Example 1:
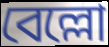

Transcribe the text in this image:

বেল্লো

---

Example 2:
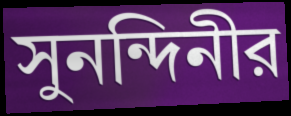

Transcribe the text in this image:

সুনন্দিনীর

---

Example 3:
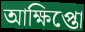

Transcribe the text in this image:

আক্ষিপ্তো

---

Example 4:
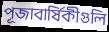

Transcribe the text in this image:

পূজাবার্ষিকীগুলি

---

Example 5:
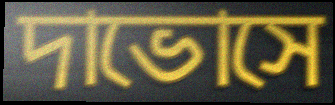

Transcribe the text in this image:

দাভোসে